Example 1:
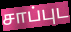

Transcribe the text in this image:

சாப்புட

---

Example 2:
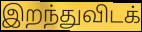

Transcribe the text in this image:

இறந்துவிடக்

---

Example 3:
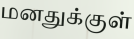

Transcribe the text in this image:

மனதுக்குள்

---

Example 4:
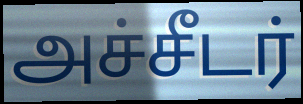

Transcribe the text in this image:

அச்சீடர்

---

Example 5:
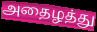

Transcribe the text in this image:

அதைழத்து